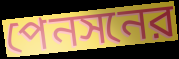
পেনসনের